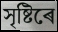
সৃষ্টিৰে